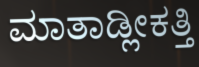
ಮಾತಾಡ್ಲೀಕತ್ತಿ